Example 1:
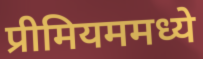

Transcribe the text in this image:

प्रीमियममध्ये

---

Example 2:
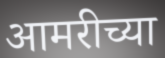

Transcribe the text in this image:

आमरीच्या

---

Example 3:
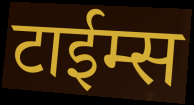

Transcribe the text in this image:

टाईम्स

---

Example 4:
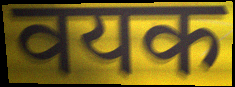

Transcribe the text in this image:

वयक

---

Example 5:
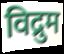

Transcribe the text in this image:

विद्रुम